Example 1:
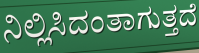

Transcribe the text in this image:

ನಿಲ್ಲಿಸಿದಂತಾಗುತ್ತದೆ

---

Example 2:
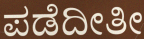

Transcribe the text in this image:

ಪಡೆದೀತೀ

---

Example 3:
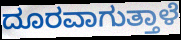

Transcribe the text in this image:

ದೂರವಾಗುತ್ತಾಳೆ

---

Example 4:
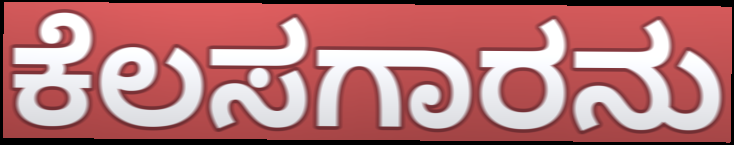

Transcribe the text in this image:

ಕೆಲಸಗಾರನು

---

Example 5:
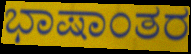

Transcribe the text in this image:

ಭಾಷಾಂತರ